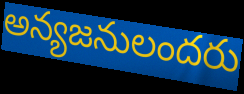
అన్యజనులందరు